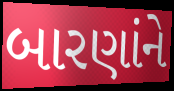
બારણાંને